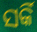
ସର୍କି